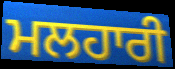
ਮਲਹਾਰੀ